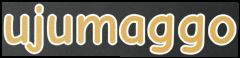
ujumaggo